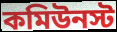
কমিউনস্ট